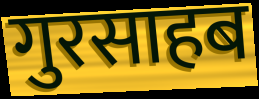
गुरसाहब